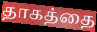
தாகத்தை